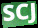
SCJ